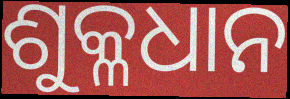
ଶୁକ୍ଳଧାନ